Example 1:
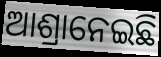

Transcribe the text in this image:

ଆଶ୍ରାନେଇଛି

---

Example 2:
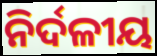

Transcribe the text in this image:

ନିର୍ଦଳୀୟ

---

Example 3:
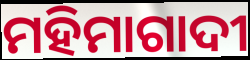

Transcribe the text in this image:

ମହିମାଗାଦୀ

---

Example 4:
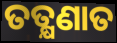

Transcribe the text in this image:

ତତ୍କ୍ଷଣାତ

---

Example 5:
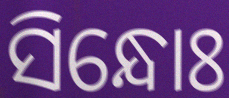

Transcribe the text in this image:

ସିନ୍ଧୋଃ